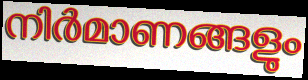
നിർമാണങ്ങളും